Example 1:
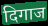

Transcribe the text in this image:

दिगाज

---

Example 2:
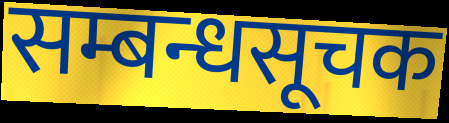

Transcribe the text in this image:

सम्बन्धसूचक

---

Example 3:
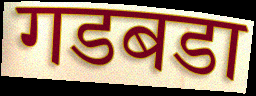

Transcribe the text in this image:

गडबडा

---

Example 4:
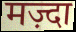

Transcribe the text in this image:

मज़्दा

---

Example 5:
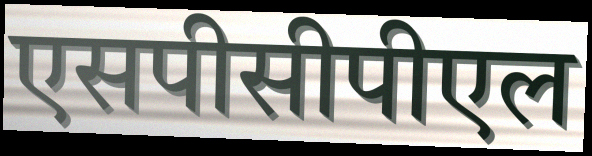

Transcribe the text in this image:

एसपीसीपीएल